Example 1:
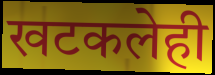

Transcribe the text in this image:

खटकलेही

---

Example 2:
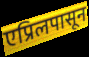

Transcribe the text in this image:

एप्रिलपासून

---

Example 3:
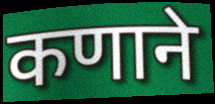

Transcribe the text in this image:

कणाने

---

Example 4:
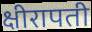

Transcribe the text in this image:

क्षीरापती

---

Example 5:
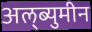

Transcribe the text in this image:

अल्ब्युमीन